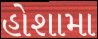
હોશામા